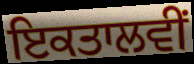
ਇਕਤਾਲਵੀਂ